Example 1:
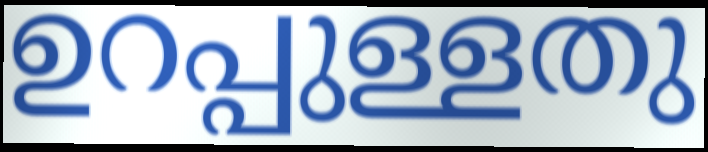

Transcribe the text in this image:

ഉറപ്പുള്ളതു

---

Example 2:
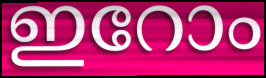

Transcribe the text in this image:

ഇറോം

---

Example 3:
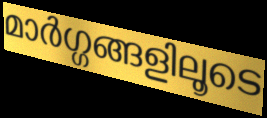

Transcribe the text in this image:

മാർഗ്ഗങ്ങളിലൂടെ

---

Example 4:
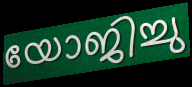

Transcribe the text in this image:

യോജിച്ചു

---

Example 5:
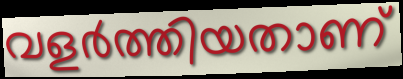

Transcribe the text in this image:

വളർത്തിയതാണ്